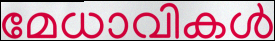
മേധാവികൾ